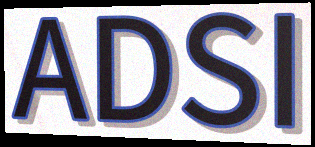
ADSI